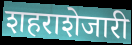
शहराशेजारी